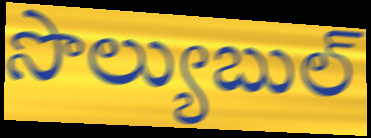
సొల్యుబుల్